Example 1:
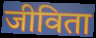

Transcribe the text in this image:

जीविता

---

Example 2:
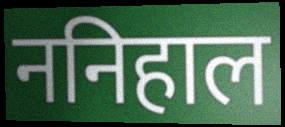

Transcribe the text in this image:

ननिहाल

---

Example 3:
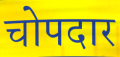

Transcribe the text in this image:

चोपदार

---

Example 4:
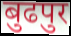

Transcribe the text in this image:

बुढपुर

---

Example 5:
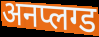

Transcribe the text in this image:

अनप्लग्ड